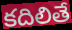
కదిలితే